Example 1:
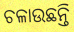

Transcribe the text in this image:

ଚଳାଉଛନ୍ତି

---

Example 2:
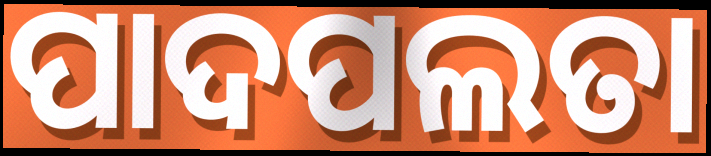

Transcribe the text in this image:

ପାଦପଲତା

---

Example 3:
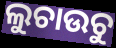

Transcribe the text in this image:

ଲୁଚାଉଚୁ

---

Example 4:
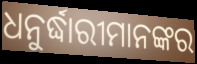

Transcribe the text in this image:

ଧନୁର୍ଦ୍ଧାରୀମାନଙ୍କର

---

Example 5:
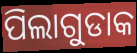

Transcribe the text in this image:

ପିଲାଗୁଡାକ